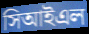
সিআইএল